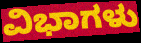
ವಿಭಾಗಳು